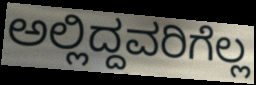
ಅಲ್ಲಿದ್ದವರಿಗೆಲ್ಲ